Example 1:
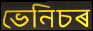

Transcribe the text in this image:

ভেনিচৰ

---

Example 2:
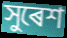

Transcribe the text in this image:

সুৰেশ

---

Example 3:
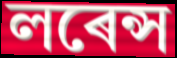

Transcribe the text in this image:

লৰেন্স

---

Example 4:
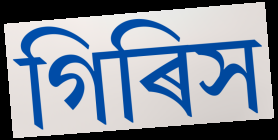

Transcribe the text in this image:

গিৰিস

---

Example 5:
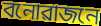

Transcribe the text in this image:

বনোৱাজনে